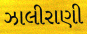
ઝાલીરાણી